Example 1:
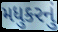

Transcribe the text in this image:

મધુકરનું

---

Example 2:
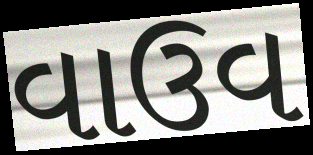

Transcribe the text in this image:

વાઉવ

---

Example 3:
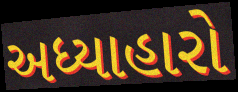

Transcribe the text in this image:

અધ્યાહારો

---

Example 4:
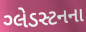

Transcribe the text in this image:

ગ્લેડસ્ટનના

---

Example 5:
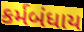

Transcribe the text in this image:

કર્મબંધાય